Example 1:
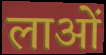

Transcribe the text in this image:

लाओं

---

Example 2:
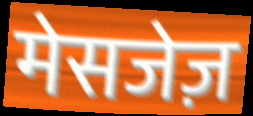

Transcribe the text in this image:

मेसजेज़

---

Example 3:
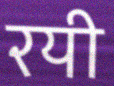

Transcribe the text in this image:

रयी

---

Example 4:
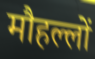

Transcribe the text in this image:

मौहल्लों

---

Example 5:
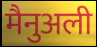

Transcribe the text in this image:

मैनुअली